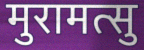
मुरामत्सु